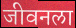
जीवनला